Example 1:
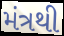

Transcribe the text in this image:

મંત્રથી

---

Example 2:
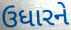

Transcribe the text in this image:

ઉધારને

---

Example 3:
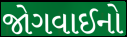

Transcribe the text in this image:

જોગવાઈનો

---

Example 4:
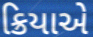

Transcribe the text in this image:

ક્રિયાએ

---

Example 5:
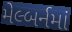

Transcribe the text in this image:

મેલ્બર્નમાં